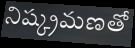
నిష్క్రమణతో